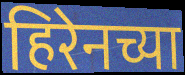
हिरेनच्या